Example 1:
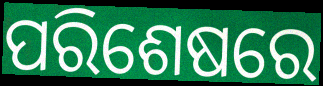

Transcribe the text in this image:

ପରିଶେଷରେ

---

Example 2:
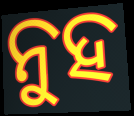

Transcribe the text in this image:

ନୁହ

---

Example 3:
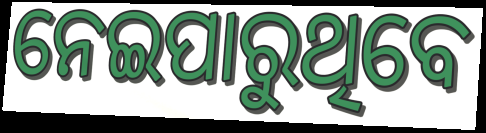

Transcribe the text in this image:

ନେଇପାରୁଥିବେ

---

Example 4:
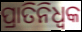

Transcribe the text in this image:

ପ୍ରାତିନିଧ୍ଵକ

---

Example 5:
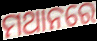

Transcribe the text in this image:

ମଥାନରେ